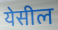
येसील